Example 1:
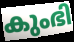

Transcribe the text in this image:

കുംഭി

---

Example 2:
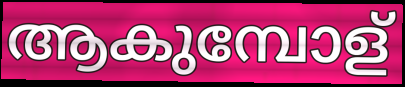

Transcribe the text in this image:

ആകുമ്പോള്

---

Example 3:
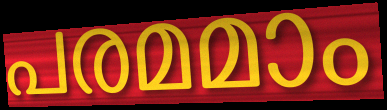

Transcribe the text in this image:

പരമമാം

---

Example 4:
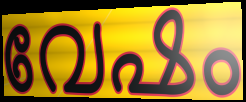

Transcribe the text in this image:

വേഷം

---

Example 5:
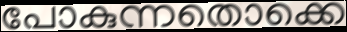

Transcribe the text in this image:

പോകുന്നതൊക്കെ